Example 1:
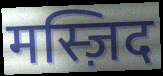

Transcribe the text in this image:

मस्ज़िद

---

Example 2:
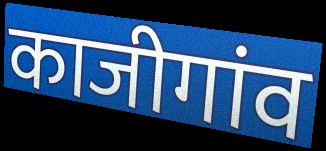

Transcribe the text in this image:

काजीगांव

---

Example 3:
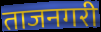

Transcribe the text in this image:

ताजनगरी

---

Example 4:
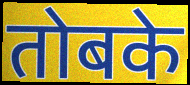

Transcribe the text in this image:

तोबके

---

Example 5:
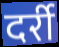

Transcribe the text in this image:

दर्री